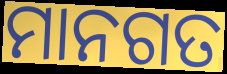
ମାନଗତ